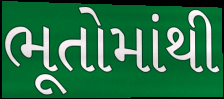
ભૂતોમાંથી